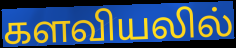
களவியலில்